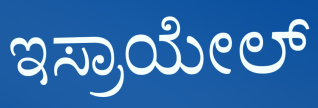
ಇಸ್ರಾಯೇಲ್